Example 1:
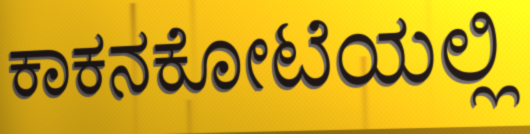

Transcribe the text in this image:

ಕಾಕನಕೋಟೆಯಲ್ಲಿ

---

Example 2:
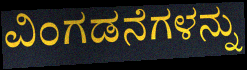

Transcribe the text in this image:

ವಿಂಗಡನೆಗಳನ್ನು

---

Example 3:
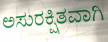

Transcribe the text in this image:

ಅಸುರಕ್ಷಿತವಾಗಿ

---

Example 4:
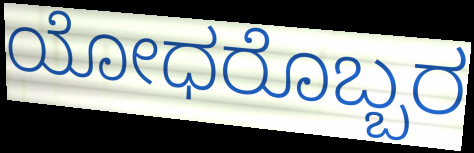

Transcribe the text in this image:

ಯೋಧರೊಬ್ಬರ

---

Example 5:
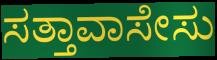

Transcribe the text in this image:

ಸತ್ತಾವಾಸೇಸು